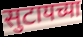
सुटायच्या